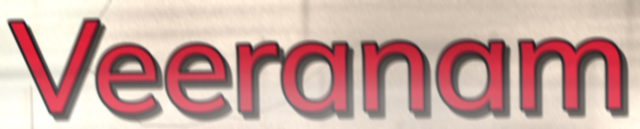
Veeranam